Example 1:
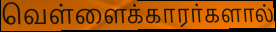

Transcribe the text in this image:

வெள்ளைக்காரர்களால்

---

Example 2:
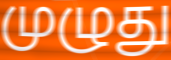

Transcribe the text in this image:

முழுது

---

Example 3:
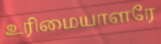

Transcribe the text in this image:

உரிமையாளரே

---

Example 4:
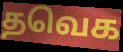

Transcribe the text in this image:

தவெக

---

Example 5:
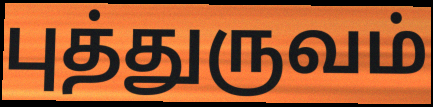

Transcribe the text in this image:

புத்துருவம்